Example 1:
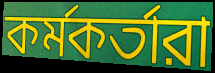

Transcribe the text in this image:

কর্মকর্তারা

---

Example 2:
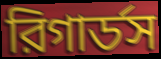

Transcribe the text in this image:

রিগার্ডস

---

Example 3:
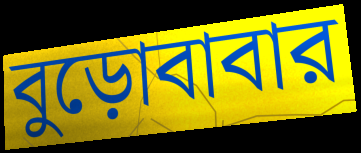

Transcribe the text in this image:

বুড়োবাবার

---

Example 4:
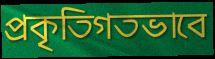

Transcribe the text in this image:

প্রকৃতিগতভাবে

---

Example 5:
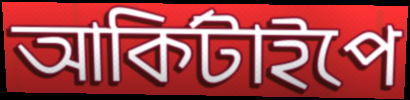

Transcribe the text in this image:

আর্কিটাইপে